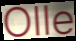
Olle